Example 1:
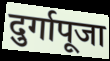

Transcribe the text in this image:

दुर्गापूजा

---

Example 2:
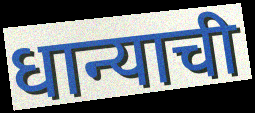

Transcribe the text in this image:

धान्याची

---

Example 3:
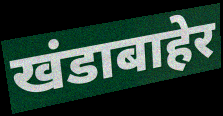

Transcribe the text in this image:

खंडाबाहेर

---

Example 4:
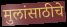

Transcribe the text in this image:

मुलांसाठीचे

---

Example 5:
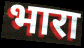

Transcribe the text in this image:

भारा